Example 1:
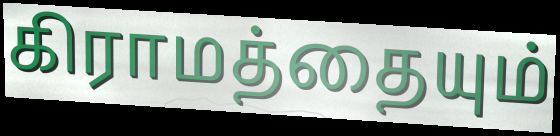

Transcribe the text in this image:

கிராமத்தையும்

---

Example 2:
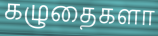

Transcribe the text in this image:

கழுதைகளா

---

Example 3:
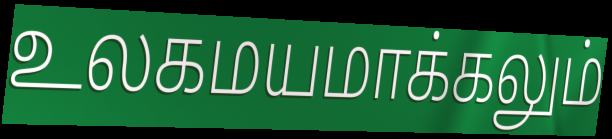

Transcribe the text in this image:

உலகமயமாக்கலும்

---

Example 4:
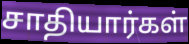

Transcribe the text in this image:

சாதியார்கள்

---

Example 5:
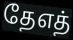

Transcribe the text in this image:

தேஎத்